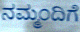
ನಮ್ಮಂದಿಗೆ